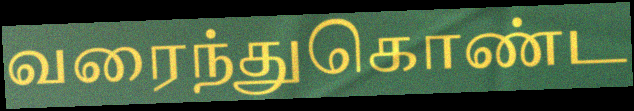
வரைந்துகொண்ட